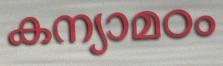
കന്യാമഠം